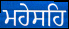
ਮਹੇਸਹਿ